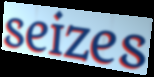
seizes